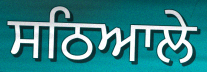
ਸਠਿਆਲੇ